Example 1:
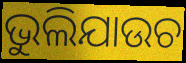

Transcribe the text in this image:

ଭୁଲିଯାଉଚ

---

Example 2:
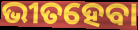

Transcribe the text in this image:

ଭୀତହେବା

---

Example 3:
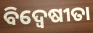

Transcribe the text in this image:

ବିଦ୍ଵେଷୀତା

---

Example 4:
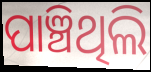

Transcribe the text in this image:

ପାଞ୍ଚିଥିଲି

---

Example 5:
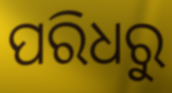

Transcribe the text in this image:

ପରିଧରୁ